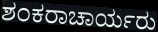
ಶಂಕರಾಚಾರ್ಯರು